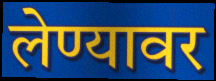
लेण्यावर